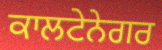
ਕਾਲਟੇਨੇਗਰ